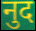
नुद